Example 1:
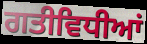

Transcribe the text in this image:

ਗਤੀਵਿਧੀਆਂ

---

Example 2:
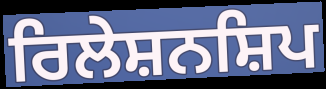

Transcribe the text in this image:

ਰਿਲੇਸ਼ਨਸ਼ਿਪ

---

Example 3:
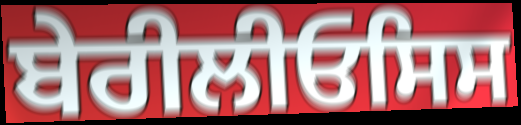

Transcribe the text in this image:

ਬੇਰੀਲੀਓਸਿਸ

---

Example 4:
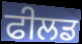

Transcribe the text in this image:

ਫੀਲਡ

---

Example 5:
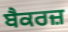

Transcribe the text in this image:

ਬੈਕਰਜ਼